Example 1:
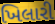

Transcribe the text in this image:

ખિલારી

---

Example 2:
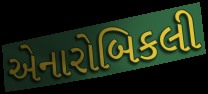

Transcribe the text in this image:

એનારોબિકલી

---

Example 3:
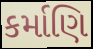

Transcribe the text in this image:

કર્માણિ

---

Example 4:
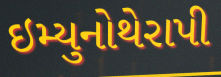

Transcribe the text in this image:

ઇમ્યુનોથેરાપી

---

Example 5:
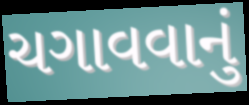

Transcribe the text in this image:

ચગાવવાનું